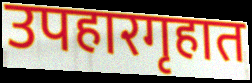
उपहारगृहात